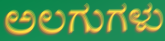
ಅಲಗುಗಳು